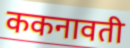
ककनावती